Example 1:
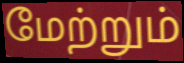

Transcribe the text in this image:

மேற்றும்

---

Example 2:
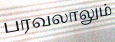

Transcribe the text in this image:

பரவலாலும்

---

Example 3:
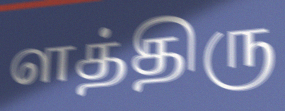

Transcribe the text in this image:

ளத்திரு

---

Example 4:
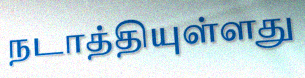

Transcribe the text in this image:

நடாத்தியுள்ளது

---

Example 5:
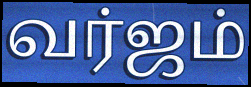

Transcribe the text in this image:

வர்ஜம்